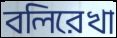
বলিরেখা